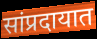
सांप्रदायात